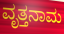
ವೃತ್ತನಾಮ